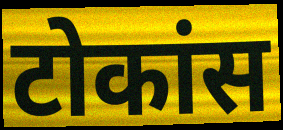
टोकांस